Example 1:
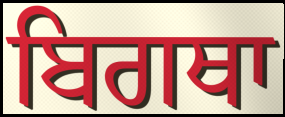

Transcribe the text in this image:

ਬਿਗਥਾ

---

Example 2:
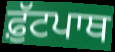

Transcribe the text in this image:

ਫ਼ੁੱਟਪਾਥ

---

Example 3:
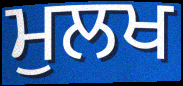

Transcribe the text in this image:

ਮੁਲਖ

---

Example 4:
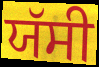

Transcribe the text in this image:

ਯੱਸੀ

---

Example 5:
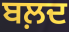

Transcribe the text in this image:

ਬਲ਼ਦ